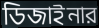
ডিজাইনার